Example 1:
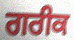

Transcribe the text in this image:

ਗਰੀਕ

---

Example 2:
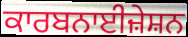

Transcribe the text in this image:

ਕਾਰਬਨਾਈਜ਼ੇਸ਼ਨ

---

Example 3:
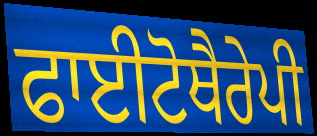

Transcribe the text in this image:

ਫਾਈਟੋਥੈਰੇਪੀ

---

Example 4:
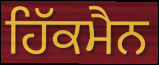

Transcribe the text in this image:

ਹਿੱਕਮੈਨ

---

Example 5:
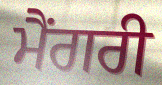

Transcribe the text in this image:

ਮੈਂਗਰੀ